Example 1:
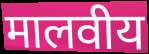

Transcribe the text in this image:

मालवीय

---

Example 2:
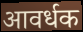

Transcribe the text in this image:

आवर्धक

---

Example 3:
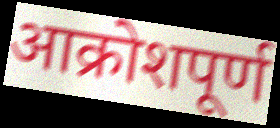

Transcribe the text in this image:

आक्रोशपूर्ण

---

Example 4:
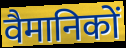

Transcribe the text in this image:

वैमानिकों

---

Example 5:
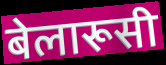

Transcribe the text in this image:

बेलारूसी